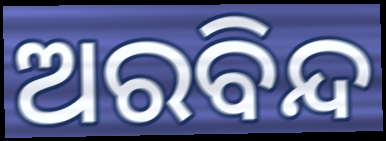
ଅରବିନ୍ଦ